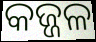
କଜ୍ଜଳ